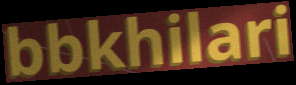
bbkhilari